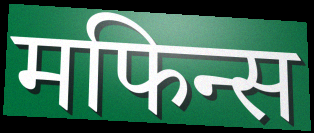
मफिन्स